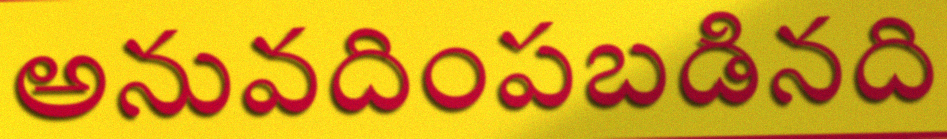
అనువదింపబడినది